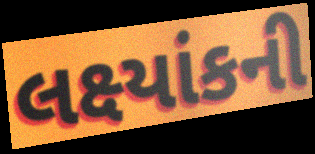
લક્ષ્યાંકની